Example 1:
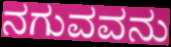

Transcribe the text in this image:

ನಗುವವನು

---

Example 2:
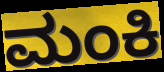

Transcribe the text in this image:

ಮಂಕಿ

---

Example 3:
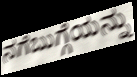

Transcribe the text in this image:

ನಗೆಬುಗ್ಗೆಯನ್ನು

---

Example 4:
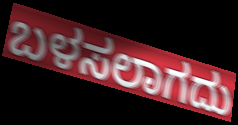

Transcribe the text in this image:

ಬಳಸಲಾಗದು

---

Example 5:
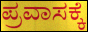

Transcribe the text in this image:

ಪ್ರವಾಸಕ್ಕೆ